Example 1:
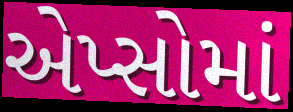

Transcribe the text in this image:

એપ્સોમાં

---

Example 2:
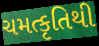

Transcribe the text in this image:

ચમત્કૃતિથી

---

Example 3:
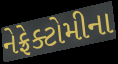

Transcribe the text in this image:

નેફ્રેક્ટોમીના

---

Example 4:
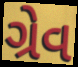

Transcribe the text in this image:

ગ્રેવ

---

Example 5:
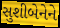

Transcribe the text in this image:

સુશીબેનેને